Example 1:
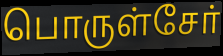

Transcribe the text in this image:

பொருள்சேர்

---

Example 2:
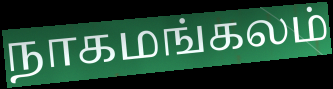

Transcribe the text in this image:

நாகமங்கலம்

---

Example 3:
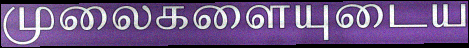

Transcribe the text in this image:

முலைகளையுடைய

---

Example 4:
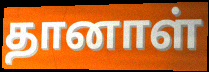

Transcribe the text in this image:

தானாள்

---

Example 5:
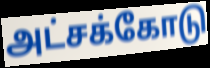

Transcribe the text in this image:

அட்சக்கோடு